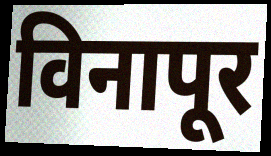
विनापूर